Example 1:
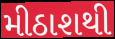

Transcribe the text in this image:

મીઠાશથી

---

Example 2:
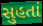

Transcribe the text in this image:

સુહતાં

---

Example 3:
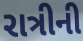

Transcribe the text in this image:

રાત્રીની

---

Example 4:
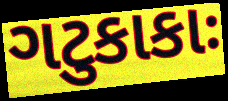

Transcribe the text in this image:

ગટુકાકાઃ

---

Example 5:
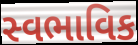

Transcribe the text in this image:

સ્વભાવિક